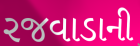
રજવાડાની